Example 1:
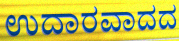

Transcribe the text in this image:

ಉದಾರವಾದದ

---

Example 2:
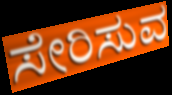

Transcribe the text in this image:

ಸೇರಿಸುವ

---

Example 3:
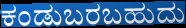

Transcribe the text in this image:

ಕಂಡುಬರಬಹುದು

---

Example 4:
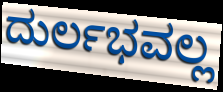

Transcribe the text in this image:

ದುರ್ಲಭವಲ್ಲ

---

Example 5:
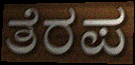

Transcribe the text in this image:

ತೆರಪ